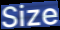
Size